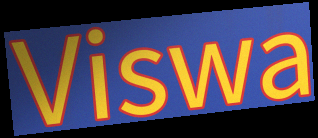
Viswa